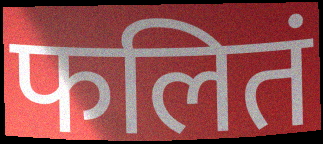
फलितं